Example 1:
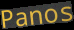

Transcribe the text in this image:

Panos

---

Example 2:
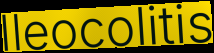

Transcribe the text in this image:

Ileocolitis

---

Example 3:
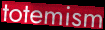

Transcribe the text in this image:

totemism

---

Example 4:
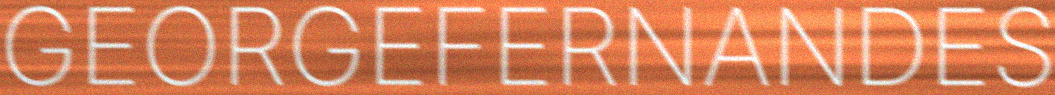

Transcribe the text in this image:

GEORGEFERNANDES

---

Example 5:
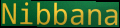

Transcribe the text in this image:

Nibbana